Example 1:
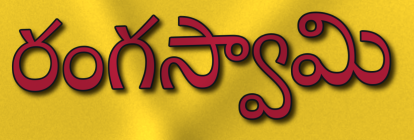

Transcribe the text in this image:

రంగస్వామి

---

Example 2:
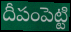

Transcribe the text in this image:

దీపంపెట్టి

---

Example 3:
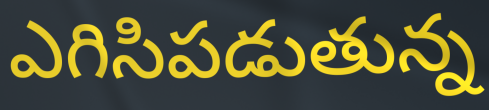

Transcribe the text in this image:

ఎగిసిపడుతున్న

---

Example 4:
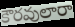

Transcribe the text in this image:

కౌరవులారా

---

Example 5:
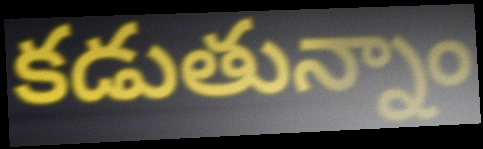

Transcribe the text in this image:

కడుతున్నాం